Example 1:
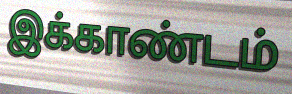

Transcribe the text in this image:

இக்காண்டம்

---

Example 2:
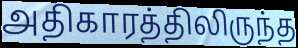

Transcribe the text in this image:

அதிகாரத்திலிருந்த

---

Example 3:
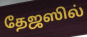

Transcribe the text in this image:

தேஜஸில்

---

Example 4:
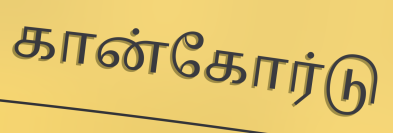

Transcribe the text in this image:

கான்கோர்டு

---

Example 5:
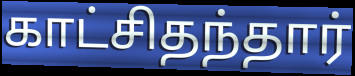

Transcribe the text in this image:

காட்சிதந்தார்